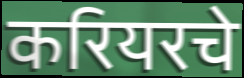
करियरचे